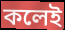
কলেই